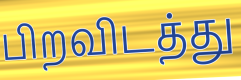
பிறவிடத்து